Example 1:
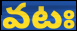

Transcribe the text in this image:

వటః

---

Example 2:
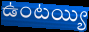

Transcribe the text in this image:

ఉంటయ్యి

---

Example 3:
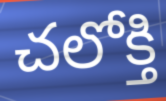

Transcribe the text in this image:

చలోక్తి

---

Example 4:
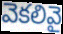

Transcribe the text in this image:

వెకలివై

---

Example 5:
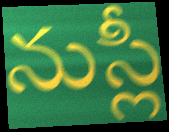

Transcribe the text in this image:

నుస్లీ